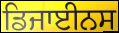
ਡਿਜਾਈਨਸ